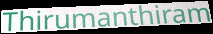
Thirumanthiram